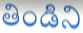
తిండిని